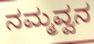
ನಮ್ಮವ್ವನ